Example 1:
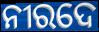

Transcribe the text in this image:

ନୀରଦେ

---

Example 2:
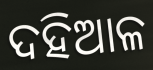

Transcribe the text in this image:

ଦହିଆଳ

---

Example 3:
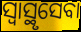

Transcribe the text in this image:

ସ୍ୱାସ୍ଥୃସେବା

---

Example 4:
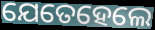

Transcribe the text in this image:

ଯେତେହେଲେ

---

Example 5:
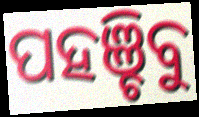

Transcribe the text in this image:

ପହଞ୍ଚିବୁ